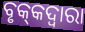
ବୃକ୍‌କଦ୍ଵାରା